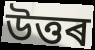
উত্তৰ